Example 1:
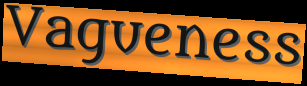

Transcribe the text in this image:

Vagueness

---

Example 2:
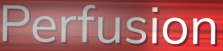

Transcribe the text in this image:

Perfusion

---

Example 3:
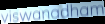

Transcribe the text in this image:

viswanadham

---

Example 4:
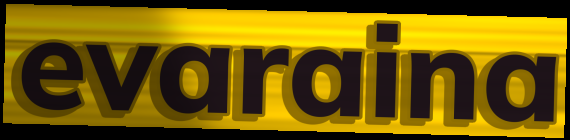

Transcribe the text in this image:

evaraina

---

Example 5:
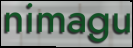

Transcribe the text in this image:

nimagu